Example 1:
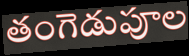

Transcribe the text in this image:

తంగెడుపూల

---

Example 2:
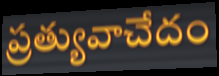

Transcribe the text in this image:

ప్రత్యువాచేదం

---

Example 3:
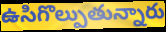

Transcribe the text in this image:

ఉసిగొల్పుతున్నారు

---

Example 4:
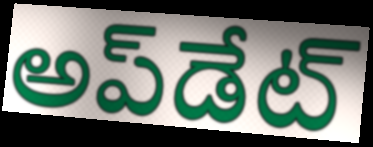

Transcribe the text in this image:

అప్‌డేట్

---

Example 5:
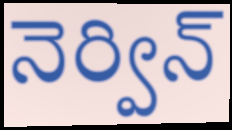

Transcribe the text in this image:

నెర్విన్